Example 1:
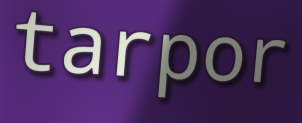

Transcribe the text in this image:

tarpor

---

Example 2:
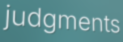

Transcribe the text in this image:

judgments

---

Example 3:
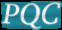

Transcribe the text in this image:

PQC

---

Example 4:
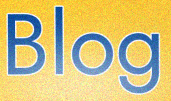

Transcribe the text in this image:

Blog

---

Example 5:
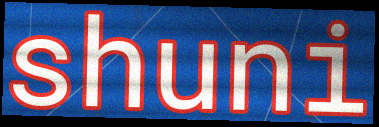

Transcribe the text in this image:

shuni